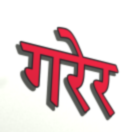
गरेर